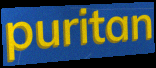
puritan